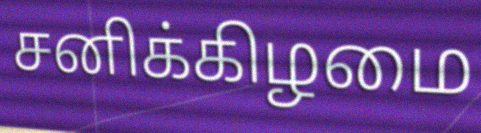
சனிக்கிழமை